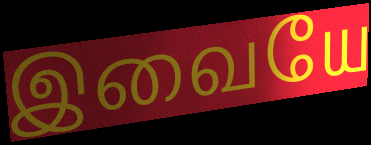
இவையே